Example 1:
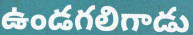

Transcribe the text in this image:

ఉండగలిగాడు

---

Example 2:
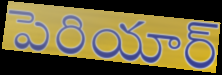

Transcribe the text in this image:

పెరియార్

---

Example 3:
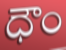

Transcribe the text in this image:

ధౌం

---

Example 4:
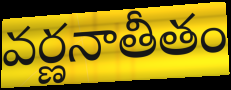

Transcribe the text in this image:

వర్ణనాతీతం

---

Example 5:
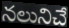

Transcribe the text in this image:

నలునిచే